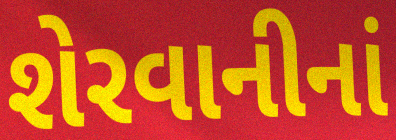
શેરવાનીનાં